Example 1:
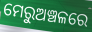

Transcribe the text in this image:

ମେରୁଅଞ୍ଚଳରେ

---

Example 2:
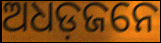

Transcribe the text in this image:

ଅଧଡ଼ଜନେ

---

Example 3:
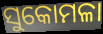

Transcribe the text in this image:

ସୁକୋମଳା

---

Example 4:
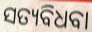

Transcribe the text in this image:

ସତ୍ୟବିଧବା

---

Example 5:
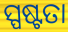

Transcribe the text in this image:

ସ୍ପଷ୍ଟତା